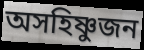
অসহিষ্ণুজন